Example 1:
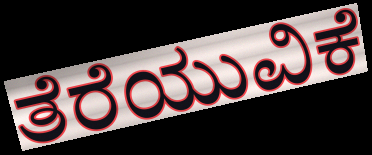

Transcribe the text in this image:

ತೆರೆಯುವಿಕೆ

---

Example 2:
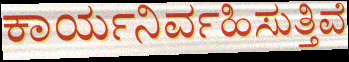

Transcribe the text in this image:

ಕಾರ್ಯನಿರ್ವಹಿಸುತ್ತಿವೆ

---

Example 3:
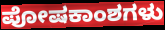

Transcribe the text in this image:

ಪೋಷಕಾಂಶಗಳು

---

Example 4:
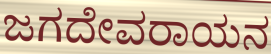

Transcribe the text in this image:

ಜಗದೇವರಾಯನ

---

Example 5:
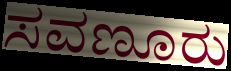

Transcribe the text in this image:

ಸವಣೂರು